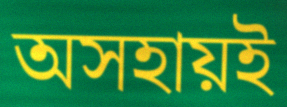
অসহায়ই